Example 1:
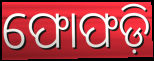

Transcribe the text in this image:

ଫୋଫଡ଼ି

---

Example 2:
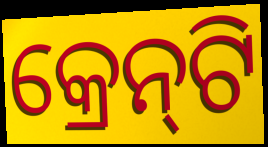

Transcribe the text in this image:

କ୍ରେନ୍‍ଟି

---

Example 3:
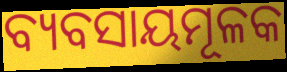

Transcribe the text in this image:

ବ୍ୟବସାୟମୂଳକ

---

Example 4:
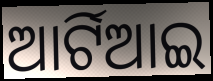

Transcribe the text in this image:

ଆର୍ଟିଆଇ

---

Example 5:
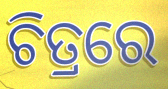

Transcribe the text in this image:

ଚିତ୍ରରେ